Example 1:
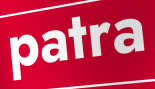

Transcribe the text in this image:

patra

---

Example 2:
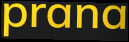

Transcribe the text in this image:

prana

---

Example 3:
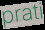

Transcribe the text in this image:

prati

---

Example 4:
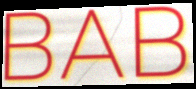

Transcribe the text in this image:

BAB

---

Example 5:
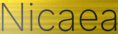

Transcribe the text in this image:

Nicaea